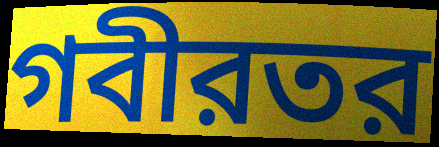
গবীরতর